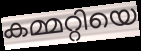
കമ്മറ്റിയെ